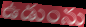
ఉడుంను